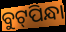
ବୁଟ୍‌ପିନ୍ଧା